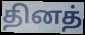
தினத்